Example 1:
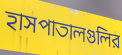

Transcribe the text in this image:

হাসপাতালগুলির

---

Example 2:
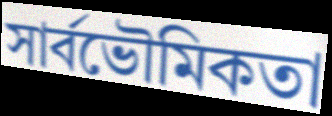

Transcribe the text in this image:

সার্বভৌমিকতা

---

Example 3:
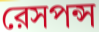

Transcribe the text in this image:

রেসপন্স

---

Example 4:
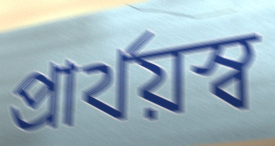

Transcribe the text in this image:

প্রার্থয়স্ব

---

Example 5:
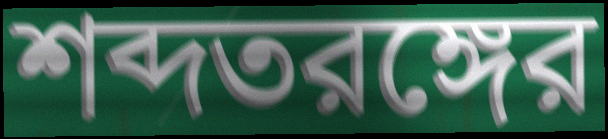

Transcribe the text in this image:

শব্দতরঙ্গের